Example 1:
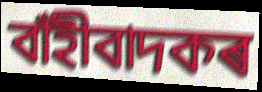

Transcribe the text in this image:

বাঁহীবাদকৰ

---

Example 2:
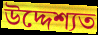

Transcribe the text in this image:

উদ্দেশ্যত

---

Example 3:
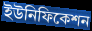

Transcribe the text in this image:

ইউনিফিকেশন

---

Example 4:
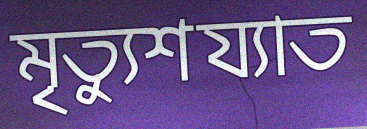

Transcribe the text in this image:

মৃত্যুশয্যাত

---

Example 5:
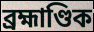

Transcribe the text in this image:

ব্ৰহ্মাণ্ডিক